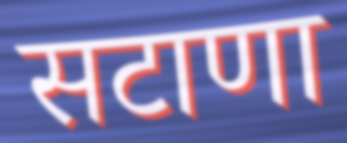
सटाणा